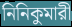
নিনিকুমারী